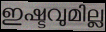
ഇഷ്ടവുമില്ല